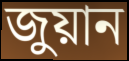
জুয়ান